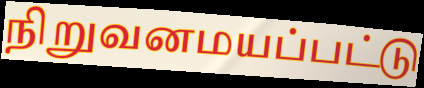
நிறுவனமயப்பட்டு